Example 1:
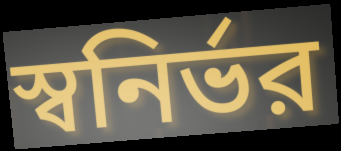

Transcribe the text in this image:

স্বনির্ভর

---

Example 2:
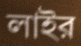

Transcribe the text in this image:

লাইর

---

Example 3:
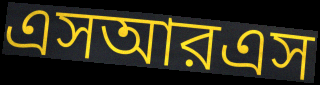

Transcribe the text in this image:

এসআরএস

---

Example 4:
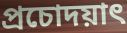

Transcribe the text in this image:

প্রচোদয়াৎ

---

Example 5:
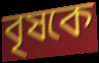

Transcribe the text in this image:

বৃষকে